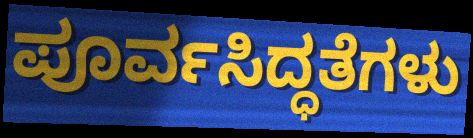
ಪೂರ್ವಸಿದ್ಧತೆಗಳು